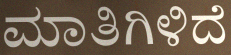
ಮಾತಿಗಿಳಿದೆ